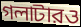
গলাটারও